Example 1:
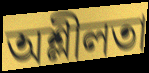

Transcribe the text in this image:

অশ্লীলতা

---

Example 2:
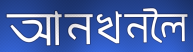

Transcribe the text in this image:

আনখনলৈ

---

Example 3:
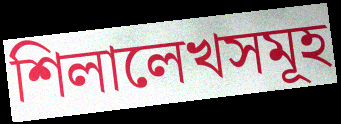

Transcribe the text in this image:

শিলালেখসমূহ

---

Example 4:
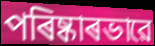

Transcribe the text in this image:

পৰিষ্কাৰভাৱে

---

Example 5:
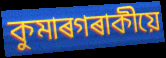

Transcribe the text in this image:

কুমাৰগৰাকীয়ে